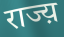
राज्य़